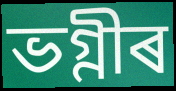
ভগ্নীৰ